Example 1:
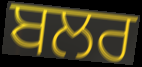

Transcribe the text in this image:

ਬਲਰ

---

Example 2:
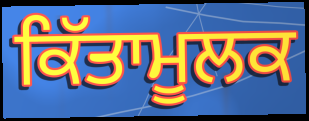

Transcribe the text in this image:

ਕਿੱਤਾਮੂਲਕ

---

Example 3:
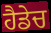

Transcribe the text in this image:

ਹੈਡੇਚ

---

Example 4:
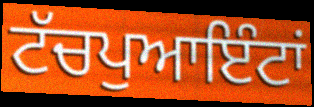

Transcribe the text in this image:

ਟੱਚਪੁਆਇੰਟਾਂ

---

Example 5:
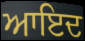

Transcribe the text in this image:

ਆਇਦ